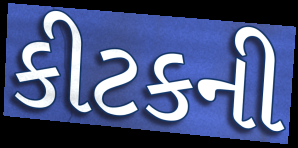
કીટકની